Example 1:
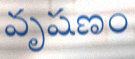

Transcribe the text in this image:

వృషణం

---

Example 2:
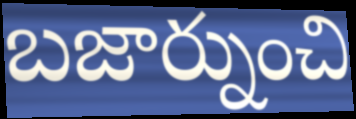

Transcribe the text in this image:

బజార్నుంచి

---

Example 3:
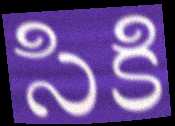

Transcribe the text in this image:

సికి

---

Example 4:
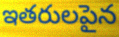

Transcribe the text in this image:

ఇతరులపైన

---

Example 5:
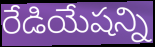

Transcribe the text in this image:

రేడియేషన్ని